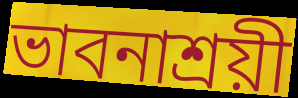
ভাবনাশ্রয়ী